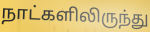
நாட்களிலிருந்து